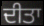
ਦੀਤਾ